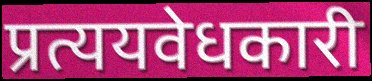
प्रत्ययवेधकारी